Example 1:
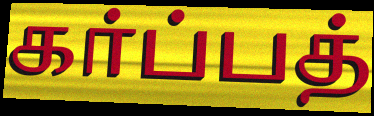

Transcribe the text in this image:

கர்ப்பத்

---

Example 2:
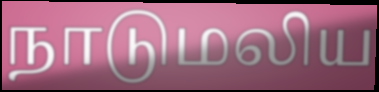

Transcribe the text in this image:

நாடுமலிய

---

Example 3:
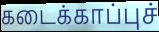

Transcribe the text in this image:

கடைக்காப்புச்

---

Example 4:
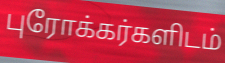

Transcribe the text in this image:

புரோக்கர்களிடம்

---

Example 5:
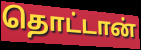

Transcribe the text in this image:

தொட்டான்